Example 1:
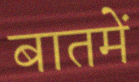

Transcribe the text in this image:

बातमें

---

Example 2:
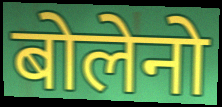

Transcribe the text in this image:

बोलेनो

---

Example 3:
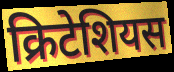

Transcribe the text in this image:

क्रिटेशियस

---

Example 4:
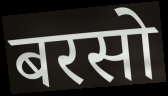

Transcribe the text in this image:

बरसो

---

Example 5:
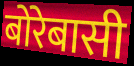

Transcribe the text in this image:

बोरेबासी